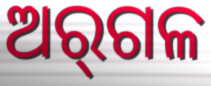
ଅର୍‌ଗଳ